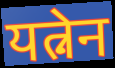
यत्नेन